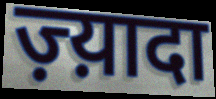
ज़्य़ादा